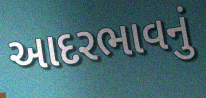
આદરભાવનું